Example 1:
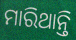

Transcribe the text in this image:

ମାରିଥାନ୍ତି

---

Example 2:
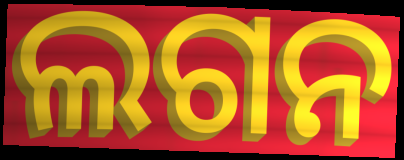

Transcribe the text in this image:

ଲଗନ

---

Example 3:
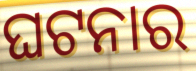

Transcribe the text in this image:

ଘଟନାର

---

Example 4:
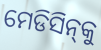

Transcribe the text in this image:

ମେଡିସିନ୍‌କୁ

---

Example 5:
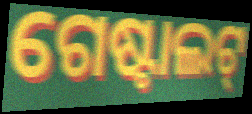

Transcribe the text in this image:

ଗେଷ୍ଟାଲଟ୍